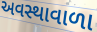
અવસ્થાવાળા